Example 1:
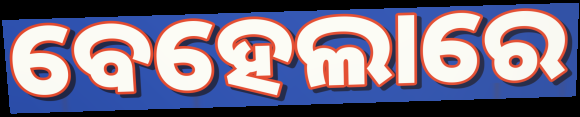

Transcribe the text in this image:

ବେହେଲାରେ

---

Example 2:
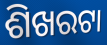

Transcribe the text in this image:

ଶିଖରଟା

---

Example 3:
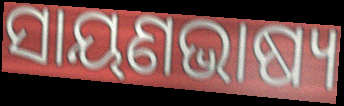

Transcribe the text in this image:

ସାୟଣଭାଷ୍ୟ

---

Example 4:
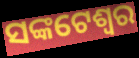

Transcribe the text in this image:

ସଙ୍କଟେଶ୍ୱର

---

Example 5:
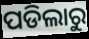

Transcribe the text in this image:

ପଡିଲାରୁ